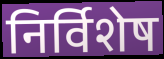
निर्विशेष